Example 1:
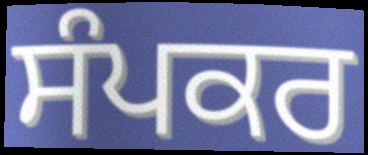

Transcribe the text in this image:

ਸੰਪਕਰ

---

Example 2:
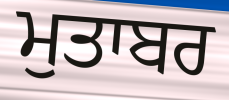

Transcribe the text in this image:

ਮੁਤਾਬਰ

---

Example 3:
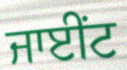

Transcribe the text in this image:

ਜਾਈਂਟ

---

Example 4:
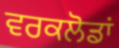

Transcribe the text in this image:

ਵਰਕਲੋਡਾਂ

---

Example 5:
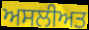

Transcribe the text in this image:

ਅਸਲੀਅਤ